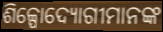
ଶିଳ୍ପୋଦ୍ୟୋଗୀମାନଙ୍କ